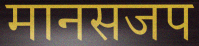
मानसजप